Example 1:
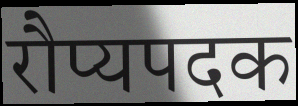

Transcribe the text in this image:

रौप्यपदक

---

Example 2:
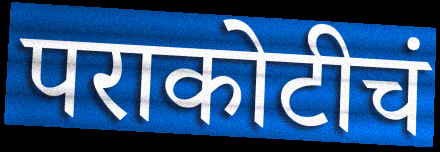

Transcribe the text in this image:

पराकोटीचं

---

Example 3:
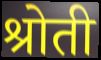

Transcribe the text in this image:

श्रोती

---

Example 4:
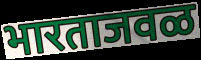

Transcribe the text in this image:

भारताजवळ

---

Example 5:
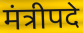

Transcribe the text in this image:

मंत्रीपदे